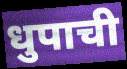
धुपाची